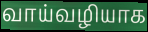
வாய்வழியாக